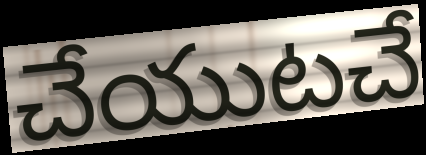
చేయుటచే